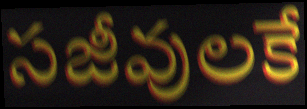
సజీవులకే